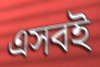
এসবই